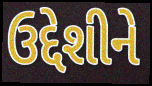
ઉદ્દેશીને